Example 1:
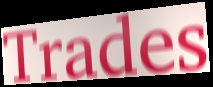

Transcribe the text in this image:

Trades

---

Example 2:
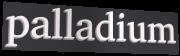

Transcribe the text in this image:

palladium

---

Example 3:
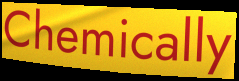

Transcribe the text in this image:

Chemically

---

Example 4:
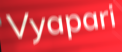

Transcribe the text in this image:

Vyapari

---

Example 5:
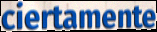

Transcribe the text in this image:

ciertamente